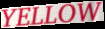
YELLOW